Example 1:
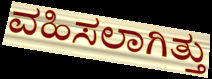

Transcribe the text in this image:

ವಹಿಸಲಾಗಿತ್ತು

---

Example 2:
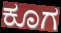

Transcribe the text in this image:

ಕೂಗ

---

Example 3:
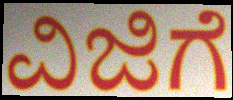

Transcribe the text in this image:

ವಿಜಿಗೆ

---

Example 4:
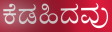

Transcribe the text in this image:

ಕೆಡಹಿದವು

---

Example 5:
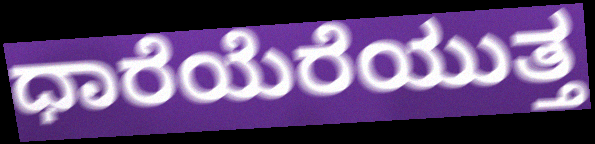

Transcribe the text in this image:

ಧಾರೆಯೆರೆಯುತ್ತ